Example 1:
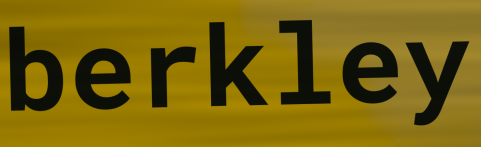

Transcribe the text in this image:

berkley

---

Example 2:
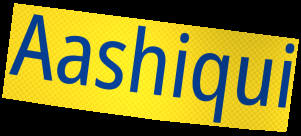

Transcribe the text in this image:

Aashiqui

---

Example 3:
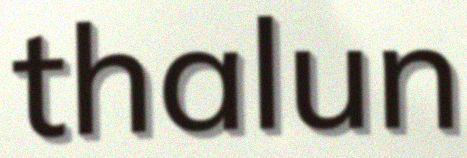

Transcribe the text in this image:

thalun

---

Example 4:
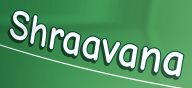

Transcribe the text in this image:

Shraavana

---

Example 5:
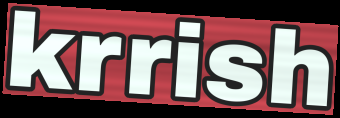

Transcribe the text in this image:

krrish